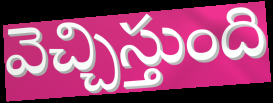
వెచ్చిస్తుంది